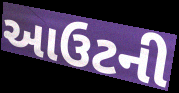
આઉટની